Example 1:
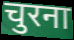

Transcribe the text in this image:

चुरना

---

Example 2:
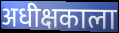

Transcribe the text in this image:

अधीक्षकाला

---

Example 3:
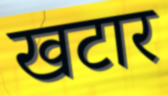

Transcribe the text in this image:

खटार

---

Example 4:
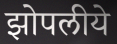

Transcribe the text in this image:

झोपलीये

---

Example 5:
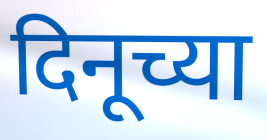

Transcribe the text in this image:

दिनूच्या